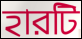
হারটি